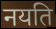
नयति